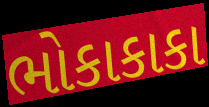
ભોકાકાકા